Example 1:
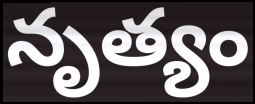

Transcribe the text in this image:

నృత్యం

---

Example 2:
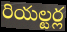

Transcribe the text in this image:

రియల్టర్ల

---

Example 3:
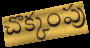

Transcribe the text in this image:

చొక్కంపు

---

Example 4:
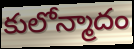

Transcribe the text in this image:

కులోన్మాదం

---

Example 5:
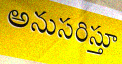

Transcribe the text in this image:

అనుసరిస్తూ